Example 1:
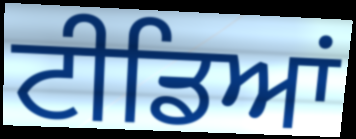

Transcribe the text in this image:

ਟੀਡਿਆਂ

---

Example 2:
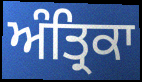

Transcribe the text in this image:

ਅੰਤ੍ਰਿਕਾ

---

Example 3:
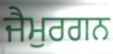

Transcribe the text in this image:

ਜੈਮੁਰਗਨ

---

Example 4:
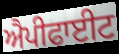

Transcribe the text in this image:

ਐਪੀਫਾਈਟ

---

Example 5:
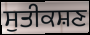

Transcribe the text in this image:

ਸੁਤੀਕਸ਼ਣ